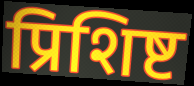
प्रिशिष्ट